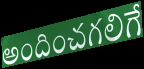
అందించగలిగే